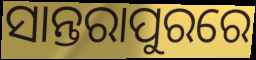
ସାନ୍ତରାପୁରରେ